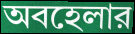
অবহেলার